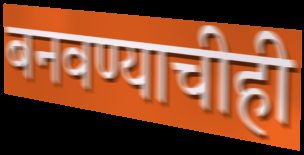
बनवण्याचीही